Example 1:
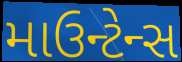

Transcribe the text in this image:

માઉન્ટેન્સ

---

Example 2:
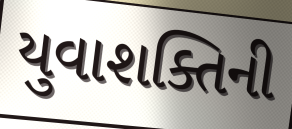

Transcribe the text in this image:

યુવાશક્તિની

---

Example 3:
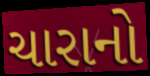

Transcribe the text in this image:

ચારાનો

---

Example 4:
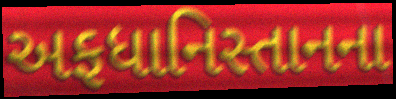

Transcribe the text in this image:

અફધાનિસ્તાનના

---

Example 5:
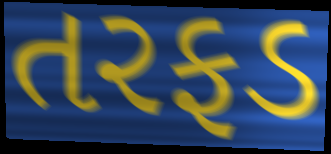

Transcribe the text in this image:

તરફડ